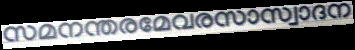
സമനന്തരമേവരസാസ്വാദന